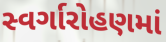
સ્વર્ગારોહણમાં